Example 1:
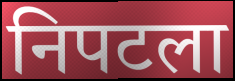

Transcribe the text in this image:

निपटला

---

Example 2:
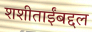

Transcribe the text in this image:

शशीताईंबद्दल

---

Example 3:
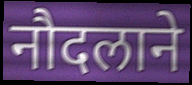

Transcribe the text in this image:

नौदलाने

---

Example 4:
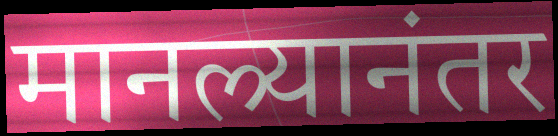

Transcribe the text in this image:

मानल्यानंतर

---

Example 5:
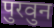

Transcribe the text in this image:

पुरवुन